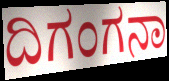
ದಿಗಂಗನಾ